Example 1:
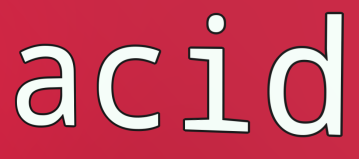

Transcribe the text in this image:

acid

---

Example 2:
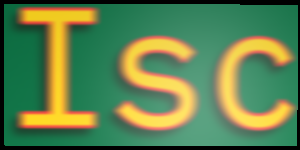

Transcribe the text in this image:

Isc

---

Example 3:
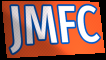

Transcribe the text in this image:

JMFC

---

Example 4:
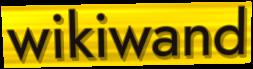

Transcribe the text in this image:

wikiwand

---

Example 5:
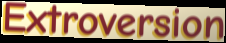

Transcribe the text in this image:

Extroversion